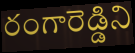
రంగారెడ్డిని